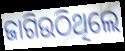
ଜାଗିଉଠିଥିଲେ